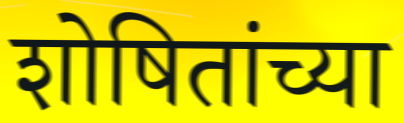
शोषितांच्या